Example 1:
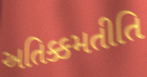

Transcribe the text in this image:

અતિક્કમતીતિ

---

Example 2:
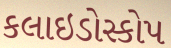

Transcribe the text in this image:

કલાઇડોસ્કોપ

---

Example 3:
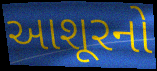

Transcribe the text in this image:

આશૂરનો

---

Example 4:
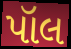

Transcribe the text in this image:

પૉલ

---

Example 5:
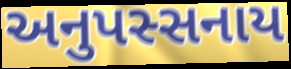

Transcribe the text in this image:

અનુપસ્સનાય